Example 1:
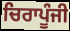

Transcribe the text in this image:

ਚਿਰਾਪੂੰਜੀ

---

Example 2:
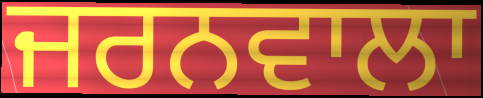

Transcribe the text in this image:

ਜਰਨਵਾਲਾ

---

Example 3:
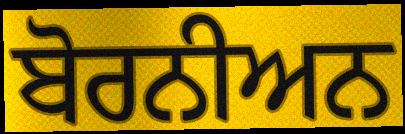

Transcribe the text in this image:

ਬੋਰਨੀਅਨ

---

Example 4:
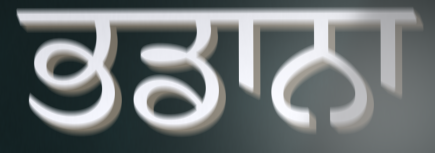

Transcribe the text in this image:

ਭਡਾਨਾ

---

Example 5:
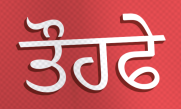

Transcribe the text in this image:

ਤੌਹਫੇ